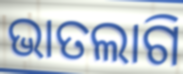
ଭାତଲାଗି